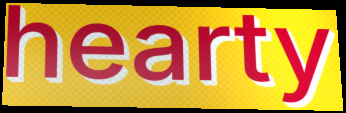
hearty